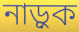
নাড়ুক